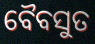
ବୈବସୁତ